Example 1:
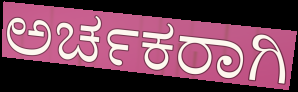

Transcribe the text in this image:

ಅರ್ಚಕರಾಗಿ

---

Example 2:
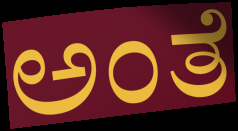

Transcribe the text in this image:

ಅಂತೆ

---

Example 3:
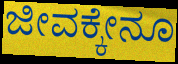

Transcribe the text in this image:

ಜೀವಕ್ಕೇನೂ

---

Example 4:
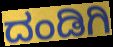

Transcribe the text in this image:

ದಂಡಿಗಿ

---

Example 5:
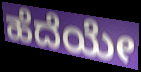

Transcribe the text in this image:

ಹೆದೆಯೇ